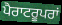
ਪੈਰਾਟਰੂਪਰਾਂ